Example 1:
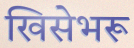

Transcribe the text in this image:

खिसेभरू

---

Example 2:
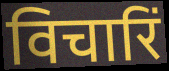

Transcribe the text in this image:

विचारिं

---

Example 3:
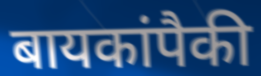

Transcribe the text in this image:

बायकांपैकी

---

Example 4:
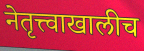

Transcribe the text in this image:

नेतृत्त्वाखालीच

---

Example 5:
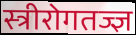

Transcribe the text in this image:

स्‍त्रीरोगतज्‍ज्ञ